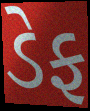
ડેફ